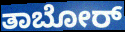
ತಾಬೋರ್